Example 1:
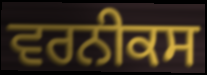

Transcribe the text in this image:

ਵਰਨੀਕਸ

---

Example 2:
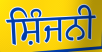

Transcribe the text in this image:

ਸ਼ਿੰਜਨੀ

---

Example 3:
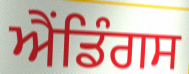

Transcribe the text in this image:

ਐਂਡਿੰਗਸ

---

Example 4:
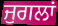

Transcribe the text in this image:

ਜੁਗਲਾਂ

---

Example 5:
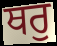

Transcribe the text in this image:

ਥਰੁ